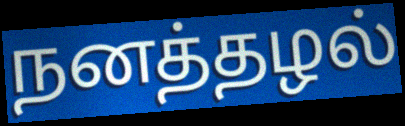
நனத்தழல்